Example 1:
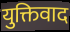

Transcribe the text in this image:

युक्तिवाद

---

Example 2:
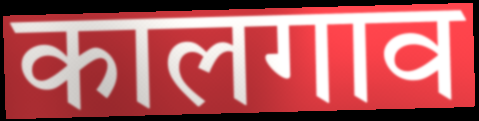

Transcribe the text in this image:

कालगाव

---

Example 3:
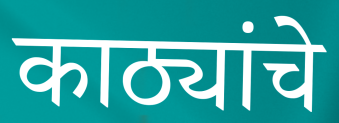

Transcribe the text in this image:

काठ्यांचे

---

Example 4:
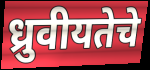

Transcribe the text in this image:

ध्रुवीयतेचे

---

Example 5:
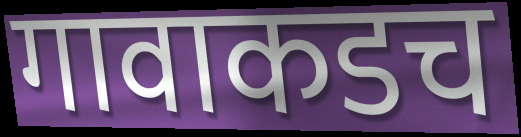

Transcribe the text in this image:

गावाकडच